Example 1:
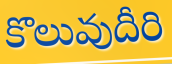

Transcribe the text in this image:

కొలువుదీరి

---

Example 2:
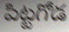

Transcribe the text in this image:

పిట్టగోడ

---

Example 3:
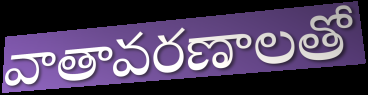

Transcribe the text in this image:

వాతావరణాలతో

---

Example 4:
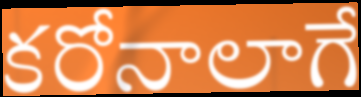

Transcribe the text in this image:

కరోనాలాగే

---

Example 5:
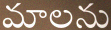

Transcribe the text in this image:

మాలను